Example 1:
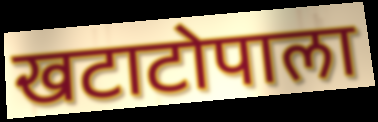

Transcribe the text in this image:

खटाटोपाला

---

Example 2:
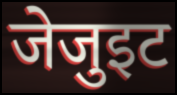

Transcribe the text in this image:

जेजुइट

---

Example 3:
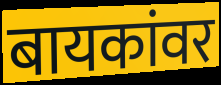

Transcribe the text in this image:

बायकांवर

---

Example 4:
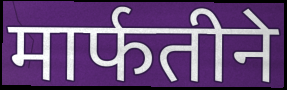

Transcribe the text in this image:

मार्फतीने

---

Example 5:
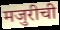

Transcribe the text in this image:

मजुरीची